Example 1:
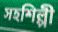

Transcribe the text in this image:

সহশিল্পী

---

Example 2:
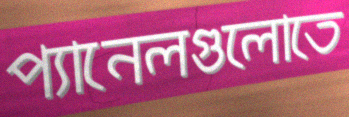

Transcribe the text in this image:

প্যানেলগুলোতে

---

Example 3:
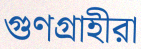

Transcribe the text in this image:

গুণগ্রাহীরা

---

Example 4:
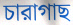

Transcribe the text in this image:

চারাগাছ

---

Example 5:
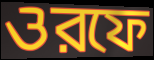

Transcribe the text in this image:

ওরফে